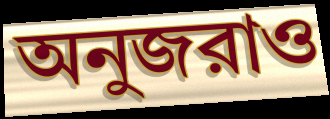
অনুজরাও